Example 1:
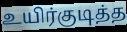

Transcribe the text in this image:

உயிர்குடித்த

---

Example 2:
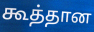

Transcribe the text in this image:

கூத்தான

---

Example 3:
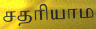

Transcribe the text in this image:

சதரியாம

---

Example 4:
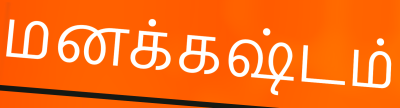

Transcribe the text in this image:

மனக்கஷ்டம்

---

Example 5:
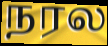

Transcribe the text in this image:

நரல